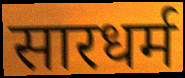
सारधर्म